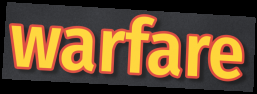
warfare